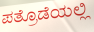
ಪತ್ರೊಡೆಯಲ್ಲಿ